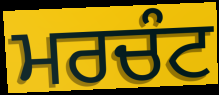
ਮਰਚੰਟ